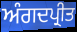
ਅੰਗਦਪ੍ਰੀਤ